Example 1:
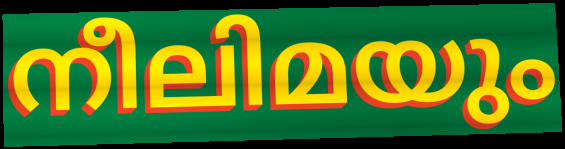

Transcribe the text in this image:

നീലിമയും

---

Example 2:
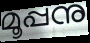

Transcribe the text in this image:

മൂപ്പനു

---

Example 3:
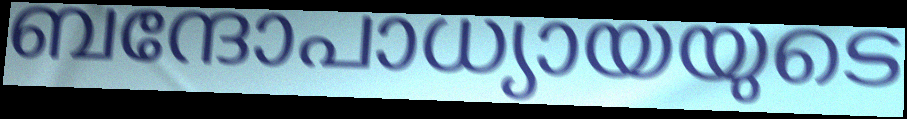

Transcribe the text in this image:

ബന്ദോപാധ്യായയുടെ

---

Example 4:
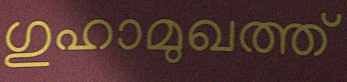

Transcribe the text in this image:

ഗുഹാമുഖത്ത്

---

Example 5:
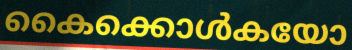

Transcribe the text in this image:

കൈക്കൊൾകയോ